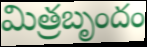
మిత్రబృందం